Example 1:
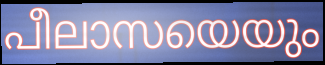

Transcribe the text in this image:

പീലാസയെയും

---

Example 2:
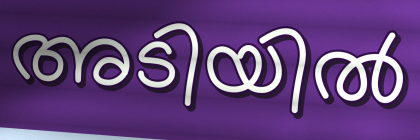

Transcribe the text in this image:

അടിയിൽ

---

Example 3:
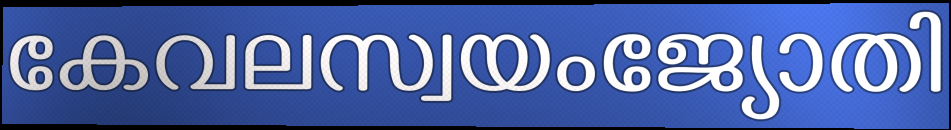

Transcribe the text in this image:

കേവലസ്വയംജ്യോതി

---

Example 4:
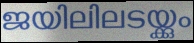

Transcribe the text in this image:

ജയിലിലടയ്ക്കും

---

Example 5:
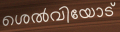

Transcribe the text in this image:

ശെൽവിയോട്